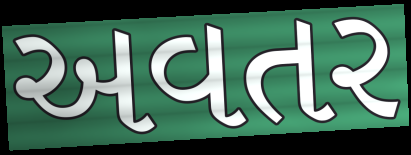
અવતર